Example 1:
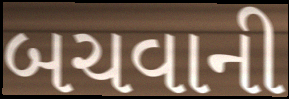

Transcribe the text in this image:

બચવાની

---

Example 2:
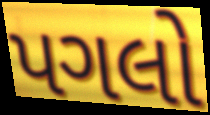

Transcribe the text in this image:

પગલો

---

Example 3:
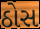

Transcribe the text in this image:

ઠોસ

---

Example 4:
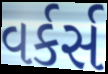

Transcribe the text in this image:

વર્કર્સ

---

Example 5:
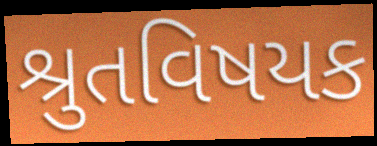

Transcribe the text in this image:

શ્રુતવિષયક